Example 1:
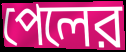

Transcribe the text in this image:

পেলের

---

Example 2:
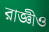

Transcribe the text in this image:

রাজ্ঞীও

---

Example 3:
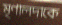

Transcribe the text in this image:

মৃণালদাকে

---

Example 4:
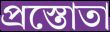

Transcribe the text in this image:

প্রস্তোতা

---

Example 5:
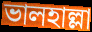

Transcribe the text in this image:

ভালহাল্লা